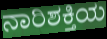
ನಾರಿಶಕ್ತಿಯ